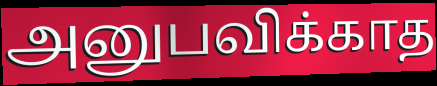
அனுபவிக்காத